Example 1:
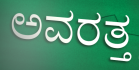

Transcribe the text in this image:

ಅವರತ್ತ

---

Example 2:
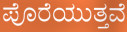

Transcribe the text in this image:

ಪೊರೆಯುತ್ತವೆ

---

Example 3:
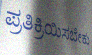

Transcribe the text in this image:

ಪ್ರತಿಕ್ರಿಯಿಸಬೇಕು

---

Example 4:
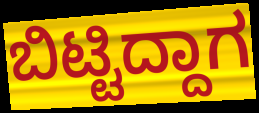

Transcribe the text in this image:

ಬಿಟ್ಟಿದ್ದಾಗ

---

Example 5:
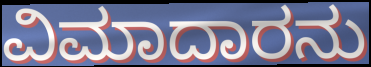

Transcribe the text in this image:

ವಿಮಾದಾರನು